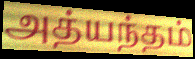
அத்யந்தம்